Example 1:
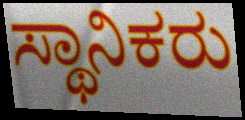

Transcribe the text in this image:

ಸ್ಥಾನಿಕರು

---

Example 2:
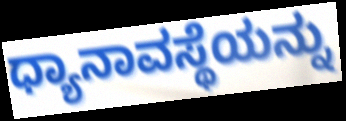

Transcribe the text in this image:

ಧ್ಯಾನಾವಸ್ಥೆಯನ್ನು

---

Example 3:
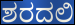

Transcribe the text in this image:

ಶರದಲಿ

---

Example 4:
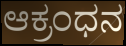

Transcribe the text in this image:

ಆಕ್ರಂಧನ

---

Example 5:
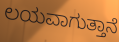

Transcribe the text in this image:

ಲಯವಾಗುತ್ತಾನೆ